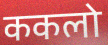
ककलो